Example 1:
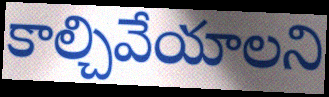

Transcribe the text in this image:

కాల్చివేయాలని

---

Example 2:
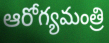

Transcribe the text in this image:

ఆరోగ్యమంత్రి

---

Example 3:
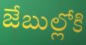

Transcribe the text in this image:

జేబుల్లోకి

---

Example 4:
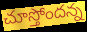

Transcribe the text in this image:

చూస్తోందన్న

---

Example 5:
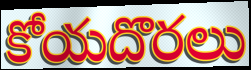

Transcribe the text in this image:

కోయదొరలు